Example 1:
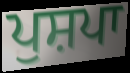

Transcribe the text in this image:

ਪੁਸ਼ਪਾ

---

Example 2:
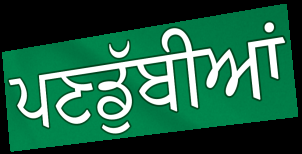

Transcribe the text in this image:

ਪਣਡੁੱਬੀਆਂ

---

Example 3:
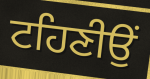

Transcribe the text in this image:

ਟਹਿਣੀਉਂ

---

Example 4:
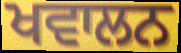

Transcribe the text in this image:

ਖਵਾਲਨ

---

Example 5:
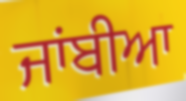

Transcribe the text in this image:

ਜਾਂਬੀਆ